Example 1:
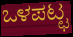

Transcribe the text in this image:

ಒಳಪಟ್ಟ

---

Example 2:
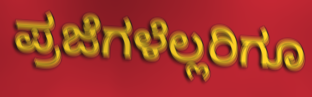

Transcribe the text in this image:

ಪ್ರಜೆಗಳೆಲ್ಲರಿಗೂ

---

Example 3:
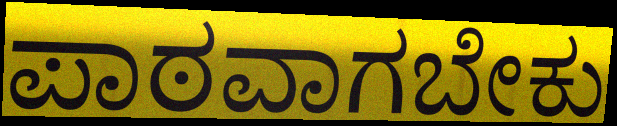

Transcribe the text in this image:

ಪಾಠವಾಗಬೇಕು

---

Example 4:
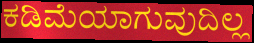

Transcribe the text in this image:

ಕಡಿಮೆಯಾಗುವುದಿಲ್ಲ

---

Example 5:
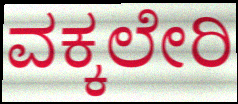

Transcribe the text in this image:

ವಕ್ಕಲೇರಿ